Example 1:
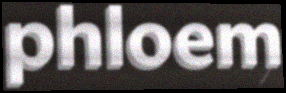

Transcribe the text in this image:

phloem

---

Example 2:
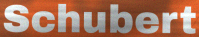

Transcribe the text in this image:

Schubert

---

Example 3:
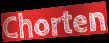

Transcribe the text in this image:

Chorten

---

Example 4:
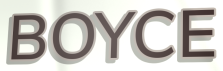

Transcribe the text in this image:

BOYCE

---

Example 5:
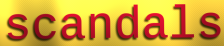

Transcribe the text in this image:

scandals